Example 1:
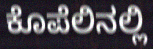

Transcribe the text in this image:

ಕೊಪೆಲಿನಲ್ಲಿ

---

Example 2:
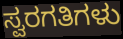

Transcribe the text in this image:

ಸ್ವರಗತಿಗಳು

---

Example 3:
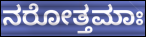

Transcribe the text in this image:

ನರೋತ್ತಮಾಃ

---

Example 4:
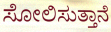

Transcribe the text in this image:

ಸೋಲಿಸುತ್ತಾನೆ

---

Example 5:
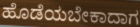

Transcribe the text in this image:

ಹೊಡೆಯಬೇಕಾದಾಗ